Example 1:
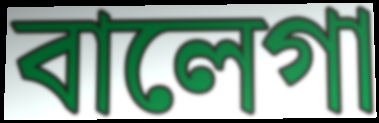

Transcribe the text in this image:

বালেগা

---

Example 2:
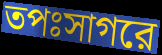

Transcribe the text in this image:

তপঃসাগরে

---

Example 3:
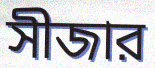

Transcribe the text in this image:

সীজার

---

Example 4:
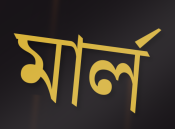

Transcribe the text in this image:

মার্ল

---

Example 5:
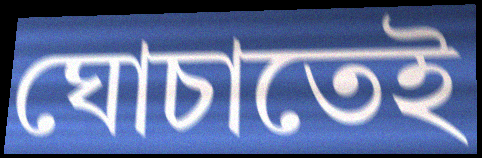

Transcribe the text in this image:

ঘোচাতেই